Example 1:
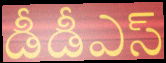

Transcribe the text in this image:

డీడీఎస్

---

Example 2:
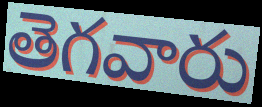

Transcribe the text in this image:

తెగవారు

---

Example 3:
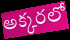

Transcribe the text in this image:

అక్కరలో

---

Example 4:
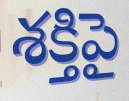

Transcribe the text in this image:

శక్తిపై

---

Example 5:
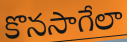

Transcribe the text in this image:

కొనసాగేలా